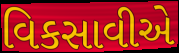
વિકસાવીએ